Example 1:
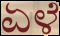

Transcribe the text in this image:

ಏಳೆ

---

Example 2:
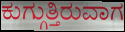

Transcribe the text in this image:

ಕುಗ್ಗುತ್ತಿರುವಾಗ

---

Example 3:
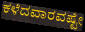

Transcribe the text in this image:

ಕಳೆದವಾರವಷ್ಟೇ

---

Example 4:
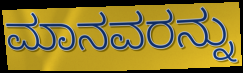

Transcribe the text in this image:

ಮಾನವರನ್ನು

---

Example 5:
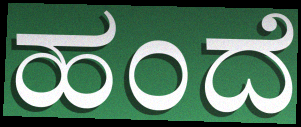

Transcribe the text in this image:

ಹಂದೆ